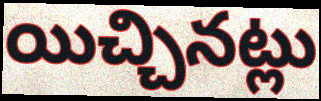
యిచ్చినట్లు